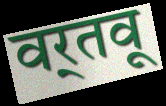
वर्तवू